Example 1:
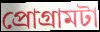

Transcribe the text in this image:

প্রোগ্রামটা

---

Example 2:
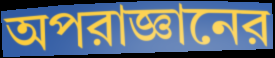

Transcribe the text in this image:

অপরাজ্ঞানের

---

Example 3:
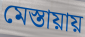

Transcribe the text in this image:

মেস্তায়ায়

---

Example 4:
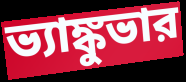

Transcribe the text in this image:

ভ্যাঙ্কুভার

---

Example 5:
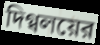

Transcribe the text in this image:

দিগ্বলয়ের